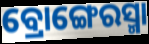
ବ୍ରୋଙ୍ଗେରସ୍ମା